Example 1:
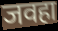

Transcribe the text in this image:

जवहा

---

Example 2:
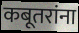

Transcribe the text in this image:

कबूतरांना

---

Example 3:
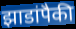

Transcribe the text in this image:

झाडांपैकी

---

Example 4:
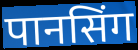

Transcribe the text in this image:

पानसिंग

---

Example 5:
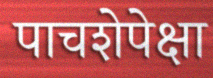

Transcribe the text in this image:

पाचशेपेक्षा